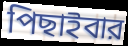
পিছাইবার